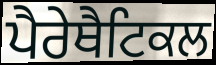
ਪੈਰੇਥੈਟਿਕਲ